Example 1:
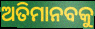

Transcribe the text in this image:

ଅତିମାନବକୁ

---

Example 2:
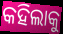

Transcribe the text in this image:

କହିଲାକୁ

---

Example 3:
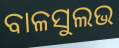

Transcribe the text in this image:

ବାଳସୁଲଭ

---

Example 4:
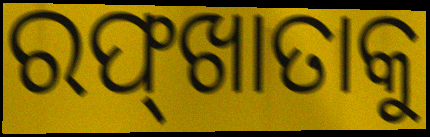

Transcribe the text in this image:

ରଫ୍‌ଖାତାକୁ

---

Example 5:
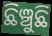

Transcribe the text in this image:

ଛିଞ୍ଚୁଛି